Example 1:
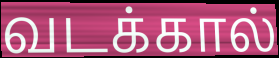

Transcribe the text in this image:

வடக்கால்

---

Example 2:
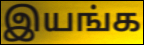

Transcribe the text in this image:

இயங்க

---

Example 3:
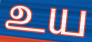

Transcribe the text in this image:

உய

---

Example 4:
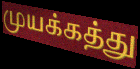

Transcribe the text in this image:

முயக்கத்து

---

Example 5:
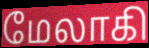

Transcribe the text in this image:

மேலாகி